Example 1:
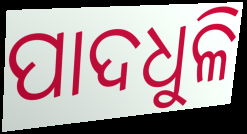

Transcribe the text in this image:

ପାଦଧୁଳି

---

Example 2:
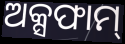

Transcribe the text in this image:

ଅକ୍ସଫାମ୍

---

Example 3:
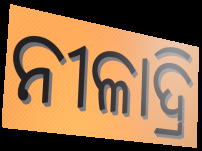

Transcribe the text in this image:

ନୀଳାଦ୍ରି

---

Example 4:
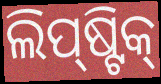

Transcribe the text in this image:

ଲିପ୍‍ଷ୍ଟିକ୍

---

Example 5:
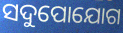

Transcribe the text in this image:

ସଦୁପୋଯୋଗ